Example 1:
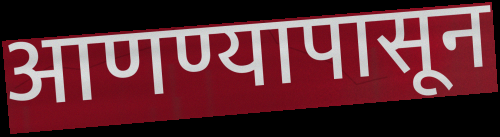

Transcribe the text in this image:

आणण्यापासून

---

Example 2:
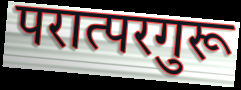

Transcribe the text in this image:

परात्परगुरू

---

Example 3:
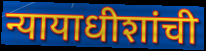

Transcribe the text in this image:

न्यायाधीशांची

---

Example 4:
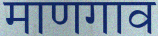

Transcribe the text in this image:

माणगाव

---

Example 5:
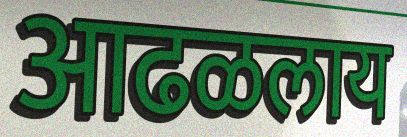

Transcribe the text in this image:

आढळलाय